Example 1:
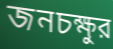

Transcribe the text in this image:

জনচক্ষুর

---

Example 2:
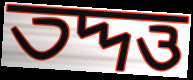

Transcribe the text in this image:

তদ্দত্ত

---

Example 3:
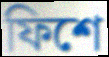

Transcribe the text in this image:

ফিশে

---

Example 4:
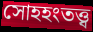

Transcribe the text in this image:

সোহহংতত্ত্ব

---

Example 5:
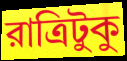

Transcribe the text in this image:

রাত্রিটুকু